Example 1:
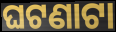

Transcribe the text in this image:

ଘଟଣାଟା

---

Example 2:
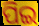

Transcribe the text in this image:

ପିଇ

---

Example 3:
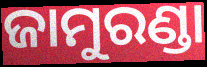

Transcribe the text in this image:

ଜାମୁରଣ୍ଡା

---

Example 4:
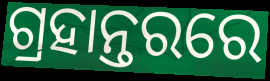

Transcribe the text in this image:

ଗ୍ରହାନ୍ତରରେ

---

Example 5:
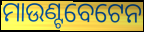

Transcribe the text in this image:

ମାଉଣ୍ଟବେଟେନ